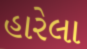
હારેલા